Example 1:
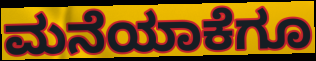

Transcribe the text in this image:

ಮನೆಯಾಕೆಗೂ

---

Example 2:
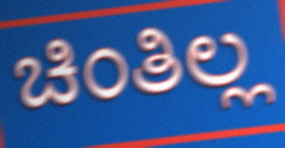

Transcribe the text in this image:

ಚಿಂತಿಲ್ಲ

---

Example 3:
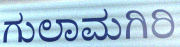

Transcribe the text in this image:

ಗುಲಾಮಗಿರಿ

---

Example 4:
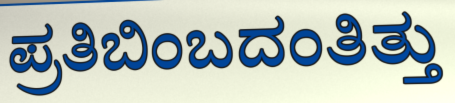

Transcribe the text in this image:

ಪ್ರತಿಬಿಂಬದಂತಿತ್ತು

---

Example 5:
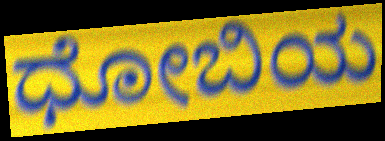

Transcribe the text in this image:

ಧೋಬಿಯ